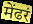
मेंढरं